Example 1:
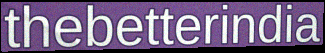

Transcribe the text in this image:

thebetterindia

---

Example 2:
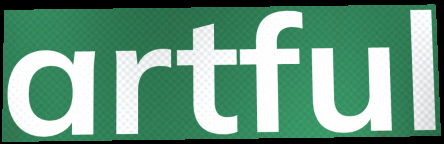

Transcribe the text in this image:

artful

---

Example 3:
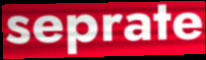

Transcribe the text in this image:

seprate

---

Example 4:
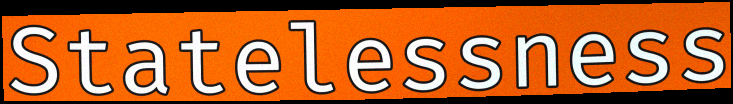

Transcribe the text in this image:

Statelessness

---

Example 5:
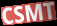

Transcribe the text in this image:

CSMT